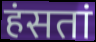
हंसतां